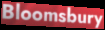
Bloomsbury